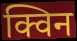
क्विन